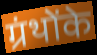
ग्रंथोंके